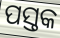
ପସ୍ତକ